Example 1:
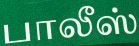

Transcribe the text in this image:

பாலீஸ்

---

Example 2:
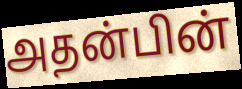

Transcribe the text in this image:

அதன்பின்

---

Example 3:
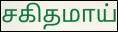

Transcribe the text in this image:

சகிதமாய்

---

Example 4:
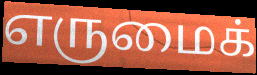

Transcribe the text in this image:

எருமைக்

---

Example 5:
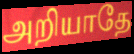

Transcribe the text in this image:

அறியாதே